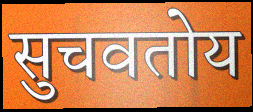
सुचवतोय